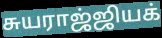
சுயராஜ்ஜியக்